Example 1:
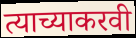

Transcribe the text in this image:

त्याच्याकरवी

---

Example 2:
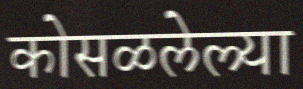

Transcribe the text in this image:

कोसळलेल्या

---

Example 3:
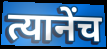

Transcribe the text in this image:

त्यानेंच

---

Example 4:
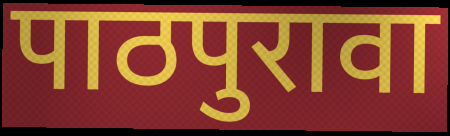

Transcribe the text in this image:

पाठपुरावा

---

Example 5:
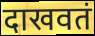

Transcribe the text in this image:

दाखवतं